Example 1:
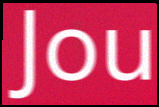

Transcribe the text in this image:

Jou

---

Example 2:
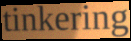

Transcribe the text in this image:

tinkering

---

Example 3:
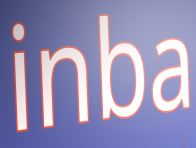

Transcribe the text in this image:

inba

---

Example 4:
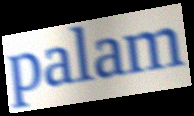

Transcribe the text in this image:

palam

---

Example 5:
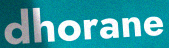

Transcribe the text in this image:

dhorane